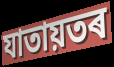
যাতায়তৰ